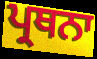
ਪ੍ਰਥਨਾ